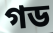
গড